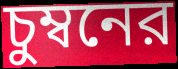
চুম্বনের